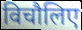
विचौलिए